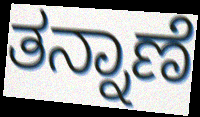
ತನ್ನಾಣೆ